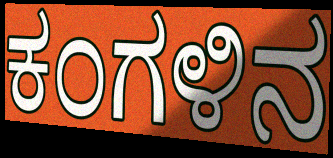
ಕಂಗಳಿನ